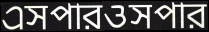
এসপারওসপার